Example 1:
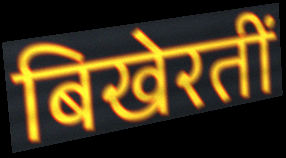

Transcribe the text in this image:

बिखेरतीं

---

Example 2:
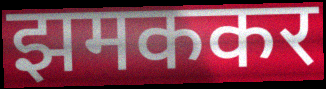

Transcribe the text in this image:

झमककर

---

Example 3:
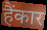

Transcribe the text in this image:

हैंकार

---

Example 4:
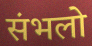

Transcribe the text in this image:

संभलो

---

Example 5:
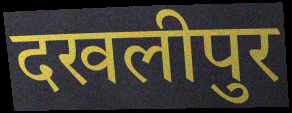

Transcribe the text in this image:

दखलीपुर